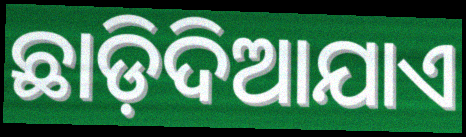
ଛାଡ଼ିଦିଆଯାଏ